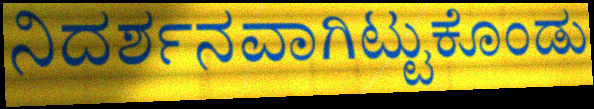
ನಿದರ್ಶನವಾಗಿಟ್ಟುಕೊಂಡು